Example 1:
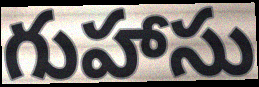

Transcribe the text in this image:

గుహాసు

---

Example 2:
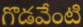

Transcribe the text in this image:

గొడవేంటి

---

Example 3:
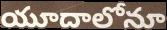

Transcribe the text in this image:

యూదాలోనూ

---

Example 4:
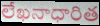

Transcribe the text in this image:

లేఖనాధారిత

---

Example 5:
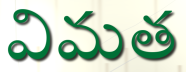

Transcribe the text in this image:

విమత